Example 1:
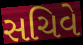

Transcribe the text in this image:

સચિવે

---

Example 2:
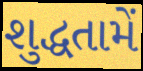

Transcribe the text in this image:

શુદ્ધતામેં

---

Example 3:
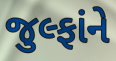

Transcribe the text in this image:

જુલ્ફાંને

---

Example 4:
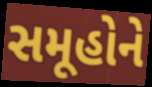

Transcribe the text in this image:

સમૂહોને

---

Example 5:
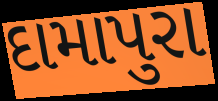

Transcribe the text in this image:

દામાપુરા